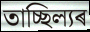
তাচ্ছিল্যৰ